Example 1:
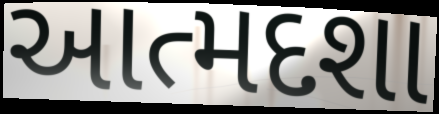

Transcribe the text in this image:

આત્મદશા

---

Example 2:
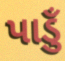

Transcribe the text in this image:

પાડુઁ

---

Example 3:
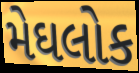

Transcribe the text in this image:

મેઘલોક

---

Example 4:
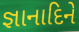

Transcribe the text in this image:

જ્ઞાનાદિને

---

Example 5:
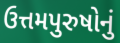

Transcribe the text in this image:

ઉત્તમપુરુષોનું